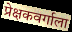
प्रेक्षकवर्गाला